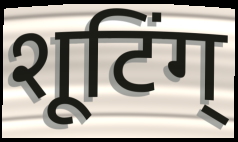
शूटिंग्